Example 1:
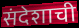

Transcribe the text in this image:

संदेशाची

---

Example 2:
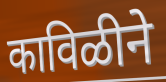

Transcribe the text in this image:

काविळीने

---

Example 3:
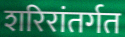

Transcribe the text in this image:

शरिरांतर्गत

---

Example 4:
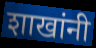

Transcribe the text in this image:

शाखांनी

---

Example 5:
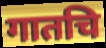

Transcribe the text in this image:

गातचि